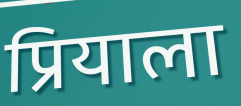
प्रियाला